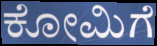
ಕೋಮಿಗೆ